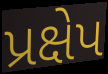
પ્રક્ષેપ